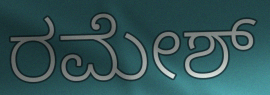
ರಮೇಶ್